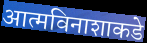
आत्मविनाशाकडे